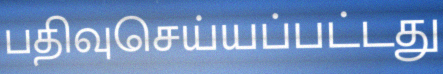
பதிவுசெய்யப்பட்டது